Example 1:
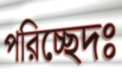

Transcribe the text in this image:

পরিচ্ছেদঃ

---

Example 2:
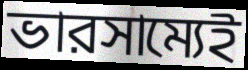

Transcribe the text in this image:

ভারসাম্যেই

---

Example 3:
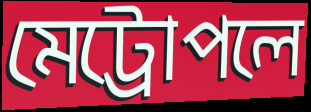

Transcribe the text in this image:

মেট্রোপলে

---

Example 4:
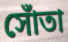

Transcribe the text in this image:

সোঁতা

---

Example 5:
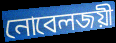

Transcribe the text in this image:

নোবেলজয়ী